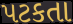
પટકતા